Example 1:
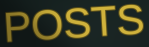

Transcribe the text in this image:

POSTS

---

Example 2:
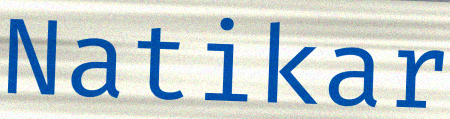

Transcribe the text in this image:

Natikar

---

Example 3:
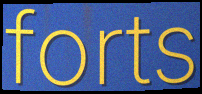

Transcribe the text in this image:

forts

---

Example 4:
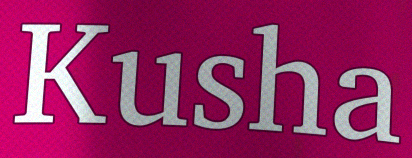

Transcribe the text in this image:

Kusha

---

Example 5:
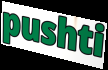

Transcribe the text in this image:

pushti